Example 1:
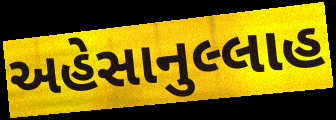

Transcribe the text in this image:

અહેસાનુલ્લાહ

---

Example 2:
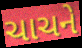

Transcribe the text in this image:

ચાચને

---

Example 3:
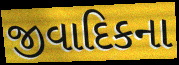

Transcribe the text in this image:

જીવાદિકના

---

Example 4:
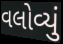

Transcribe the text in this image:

વલોવ્યું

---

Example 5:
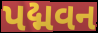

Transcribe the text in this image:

પદ્મવન